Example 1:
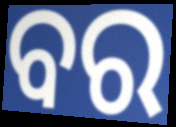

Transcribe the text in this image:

ବର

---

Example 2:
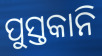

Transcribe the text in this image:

ପୁସ୍ତକାନି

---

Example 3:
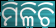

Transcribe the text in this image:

ମିଳିଚି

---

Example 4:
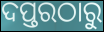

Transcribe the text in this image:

ଦପ୍ତରଠାରୁ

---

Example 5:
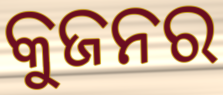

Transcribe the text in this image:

କୁଜନର